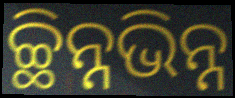
ଚ୍ଛିନ୍ନଭିନ୍ନ